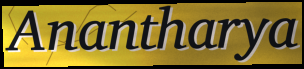
Anantharya